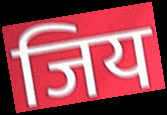
जिय